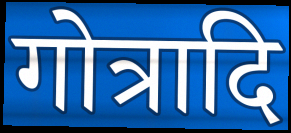
गोत्रादि